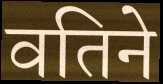
वतिने